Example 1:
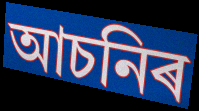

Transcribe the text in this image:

আচনিৰ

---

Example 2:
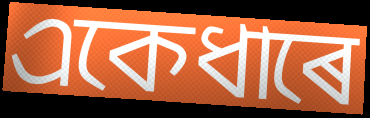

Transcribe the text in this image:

একেধাৰে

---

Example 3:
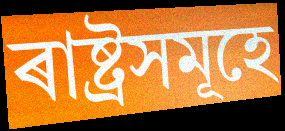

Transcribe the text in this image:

ৰাষ্ট্ৰসমূহে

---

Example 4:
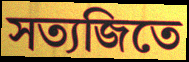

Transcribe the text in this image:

সত্যজিতে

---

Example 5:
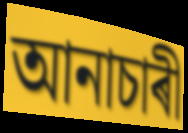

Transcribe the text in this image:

আনাচাৰী